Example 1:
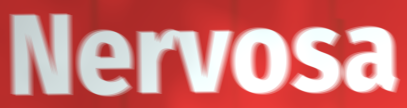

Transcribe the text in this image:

Nervosa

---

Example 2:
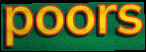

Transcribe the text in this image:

poors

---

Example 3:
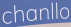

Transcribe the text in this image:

chanllo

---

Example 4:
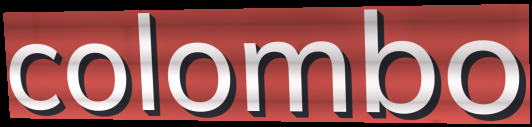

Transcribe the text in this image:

colombo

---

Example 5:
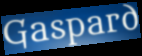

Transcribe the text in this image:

Gaspard